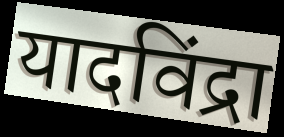
यादविंद्रा